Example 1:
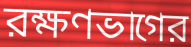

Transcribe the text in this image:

রক্ষণভাগের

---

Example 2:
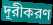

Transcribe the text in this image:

দূরীকরণ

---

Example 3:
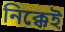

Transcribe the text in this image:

নিক্কেই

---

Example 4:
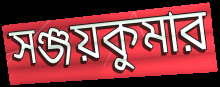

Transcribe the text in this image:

সঞ্জয়কুমার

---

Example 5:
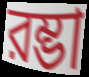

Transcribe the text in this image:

রম্ভা